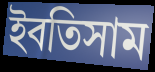
ইবতিসাম